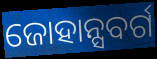
ଜୋହାନ୍ସବର୍ଗ